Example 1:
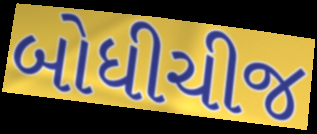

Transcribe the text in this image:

બોધીચીજ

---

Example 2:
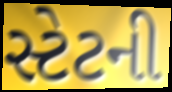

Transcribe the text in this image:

સ્ટેટની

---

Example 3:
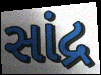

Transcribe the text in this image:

સાંદ્ર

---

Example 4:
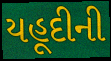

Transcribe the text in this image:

યહૂદીની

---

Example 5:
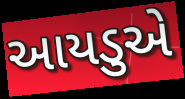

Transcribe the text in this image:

આયડુએ